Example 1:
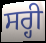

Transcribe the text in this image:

ਸਰ੍ਹੀ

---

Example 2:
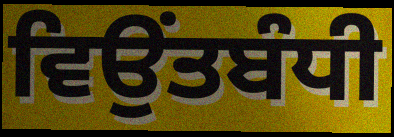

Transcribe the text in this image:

ਵਿਉਂਤਬੰਧੀ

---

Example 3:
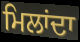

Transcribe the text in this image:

ਮਿਲਾਂਦਾ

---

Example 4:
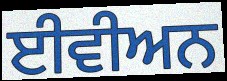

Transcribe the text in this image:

ਈਵੀਅਨ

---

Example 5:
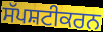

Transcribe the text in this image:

ਸੱਪਸ਼ਟੀਕਰਨ